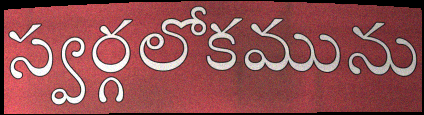
స్వర్గలోకమును